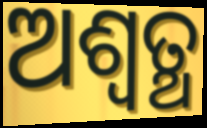
ଅଶ୍ବତ୍ଥ